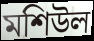
মশিউল